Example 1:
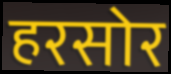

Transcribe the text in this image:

हरसोर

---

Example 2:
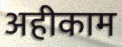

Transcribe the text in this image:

अहीकाम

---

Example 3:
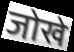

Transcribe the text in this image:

जोखे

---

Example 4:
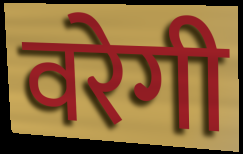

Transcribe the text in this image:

वरेगी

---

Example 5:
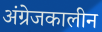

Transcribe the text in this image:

अंग्रेजकालीन